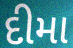
દીમા